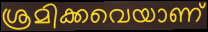
ശ്രമിക്കവെയാണ്